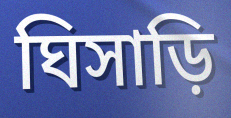
ঘিসাড়ি